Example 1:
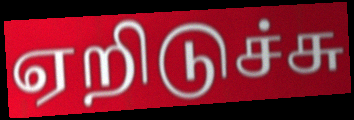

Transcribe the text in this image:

ஏறிடுச்சு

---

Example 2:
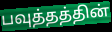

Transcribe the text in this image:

பவுத்தத்தின்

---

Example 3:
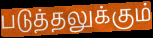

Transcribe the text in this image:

படுத்தலுக்கும்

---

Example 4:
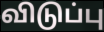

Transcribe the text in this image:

விடுப்பு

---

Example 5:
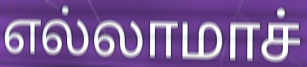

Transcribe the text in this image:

எல்லாமாச்